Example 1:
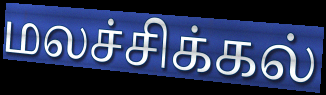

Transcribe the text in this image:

மலச்சிக்கல்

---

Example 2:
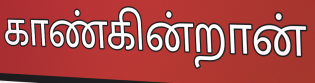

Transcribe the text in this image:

காண்கின்றான்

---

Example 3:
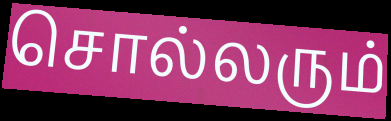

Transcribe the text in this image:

சொல்லரும்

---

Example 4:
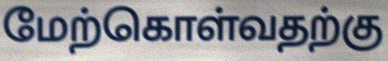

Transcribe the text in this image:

மேற்கொள்வதற்கு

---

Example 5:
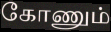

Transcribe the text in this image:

கோணும்